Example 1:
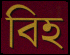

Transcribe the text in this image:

বিহ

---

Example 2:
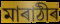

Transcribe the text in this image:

মাৰাঠীৰ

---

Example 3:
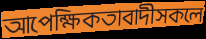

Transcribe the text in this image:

আপেক্ষিকতাবাদীসকলে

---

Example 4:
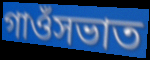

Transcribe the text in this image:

গাওঁসভাত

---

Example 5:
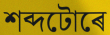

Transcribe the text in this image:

শব্দটোৰে